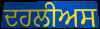
ਦਹਲੀਅਸ